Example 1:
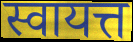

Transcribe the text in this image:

स्वायत्त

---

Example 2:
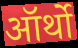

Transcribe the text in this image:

ऑर्थो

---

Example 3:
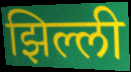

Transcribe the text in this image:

झिल्ली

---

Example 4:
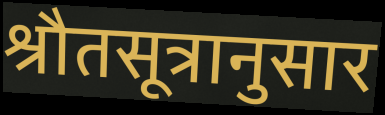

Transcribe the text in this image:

श्रौतसूत्रानुसार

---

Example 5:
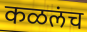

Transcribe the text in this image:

कळलंच